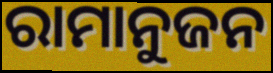
ରାମାନୁଜନ